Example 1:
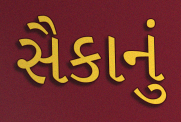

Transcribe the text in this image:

સૈકાનું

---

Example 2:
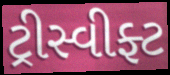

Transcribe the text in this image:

ટ્રીસ્વીફ્ટ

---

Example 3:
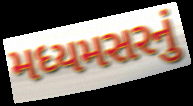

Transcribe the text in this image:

મધ્યમસરનું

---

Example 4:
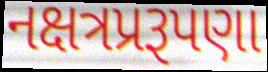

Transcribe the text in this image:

નક્ષત્રપ્રરૂપણા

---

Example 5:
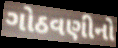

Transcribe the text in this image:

ગોઠવણીનો